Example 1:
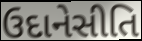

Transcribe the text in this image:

ઉદાનેસીતિ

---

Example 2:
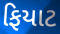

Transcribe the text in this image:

ફિયાટ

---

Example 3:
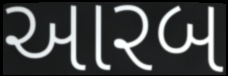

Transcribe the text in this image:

આરબ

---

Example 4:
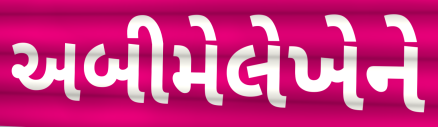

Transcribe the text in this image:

અબીમેલેખેને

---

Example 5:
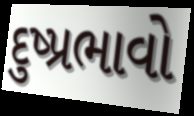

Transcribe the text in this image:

દુષ્પ્રભાવો